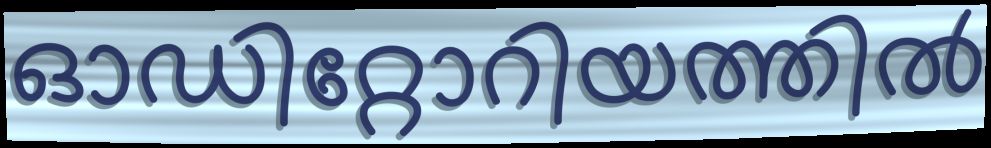
ഓഡിറ്റോറിയത്തിൽ